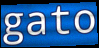
gato